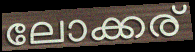
ലോക്കര്